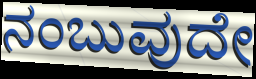
ನಂಬುವುದೇ